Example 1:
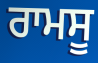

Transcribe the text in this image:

ਰਾਮਸੂ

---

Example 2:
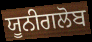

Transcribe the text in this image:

ਯੂਨੀਗਲੋਬ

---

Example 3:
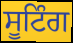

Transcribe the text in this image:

ਸੂਟਿੰਗ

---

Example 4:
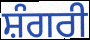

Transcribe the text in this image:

ਸ਼ੰਗਰੀ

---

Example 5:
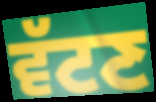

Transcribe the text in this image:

ਵੱਟਣ